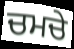
ਚਮਚੇ